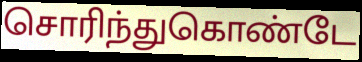
சொரிந்துகொண்டே